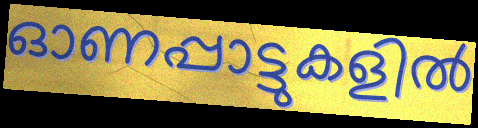
ഓണപ്പാട്ടുകളിൽ